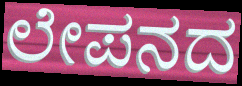
ಲೇಪನದ